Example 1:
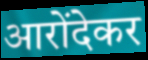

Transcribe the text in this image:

आरोंदेकर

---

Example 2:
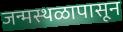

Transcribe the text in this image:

जन्मस्थळापासून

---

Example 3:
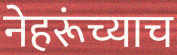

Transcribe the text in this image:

नेहरूंच्याच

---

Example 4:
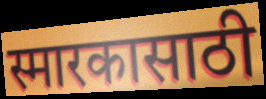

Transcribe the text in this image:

स्मारकासाठी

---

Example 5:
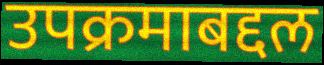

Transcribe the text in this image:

उपक्रमाबद्दल